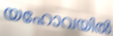
യഹോവയിൽ